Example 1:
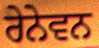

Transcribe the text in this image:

ਰੇਨੇਵਨ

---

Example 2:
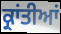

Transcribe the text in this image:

ਕ੍ਰਾਂਤੀਆਂ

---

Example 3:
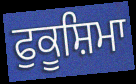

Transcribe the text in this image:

ਫੁਕੂਸ਼ਿਮਾ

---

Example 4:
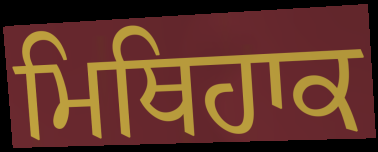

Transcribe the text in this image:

ਮਿਥਿਹਾਕ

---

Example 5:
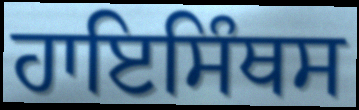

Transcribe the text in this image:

ਹਾਇਸਿੰਥਸ